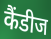
कैंडीज